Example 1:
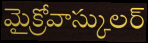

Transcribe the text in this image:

మైక్రోవాస్కులర్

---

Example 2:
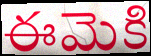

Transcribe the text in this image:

ఈమెకి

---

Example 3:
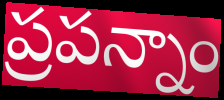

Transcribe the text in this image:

ప్రపన్నాం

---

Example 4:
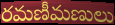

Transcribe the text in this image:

రమణీమణులు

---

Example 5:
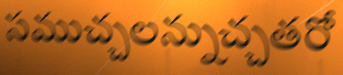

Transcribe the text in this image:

సముచ్చలన్నుచ్చతరో